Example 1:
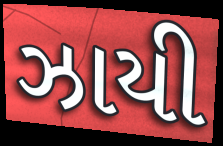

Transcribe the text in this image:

ઝાયી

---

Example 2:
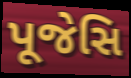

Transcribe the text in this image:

પૂજેસિ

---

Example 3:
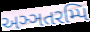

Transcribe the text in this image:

અઞ્ઞતરમ્પિ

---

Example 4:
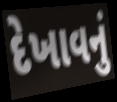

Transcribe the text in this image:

દેખાવનું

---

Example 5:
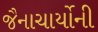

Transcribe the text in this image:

જૈનાચાર્યોની